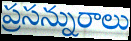
ప్రసన్నురాలు